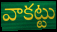
వాకట్టు